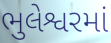
ભુલેશ્વરમાં